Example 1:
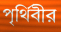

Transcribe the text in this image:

পৃর্থিবীর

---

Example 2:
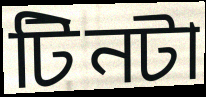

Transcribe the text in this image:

টিনটা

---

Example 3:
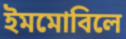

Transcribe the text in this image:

ইমমোবিলে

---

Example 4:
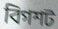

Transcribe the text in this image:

বিগশট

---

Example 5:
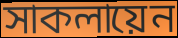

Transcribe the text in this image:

সাকলায়েন